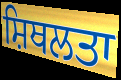
ਸ਼ਿਥਲਤਾ